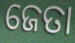
ଜେତା